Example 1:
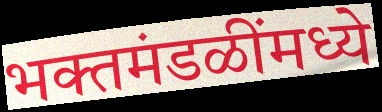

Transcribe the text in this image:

भक्तमंडळींमध्ये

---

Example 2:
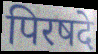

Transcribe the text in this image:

पिरषदे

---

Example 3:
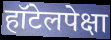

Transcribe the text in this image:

हॉटेलपेक्षा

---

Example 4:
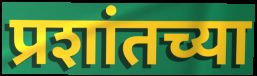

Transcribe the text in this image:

प्रशांतच्या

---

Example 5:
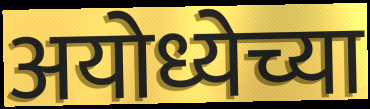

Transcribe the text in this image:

अयोध्येच्या